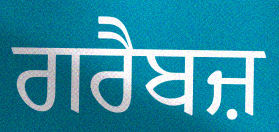
ਗਰੈਬਜ਼